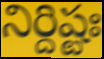
నిర్దిష్టః